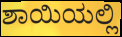
ಶಾಯಿಯಲ್ಲಿ